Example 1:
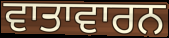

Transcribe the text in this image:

ਵਾਤਾਵਾਰਨ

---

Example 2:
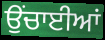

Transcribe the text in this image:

ਉਂਚਾਈਆਂ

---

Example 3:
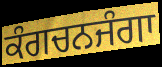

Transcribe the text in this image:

ਕੰਗਚਨਜੰਗਾ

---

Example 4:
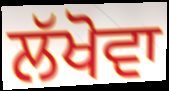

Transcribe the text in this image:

ਲੱਖੋਵਾ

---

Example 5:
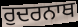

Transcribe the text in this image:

ਰੁਦਰਨਾਥ